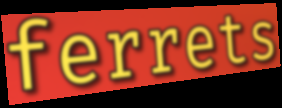
ferrets